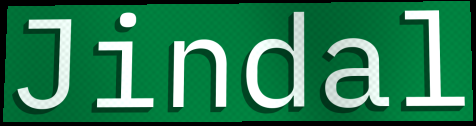
Jindal